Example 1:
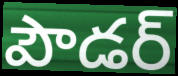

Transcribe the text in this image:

పౌడర్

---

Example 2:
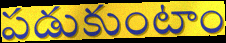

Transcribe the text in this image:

పడుకుంటాం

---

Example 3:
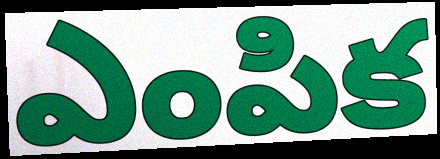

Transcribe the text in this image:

ఎంపిక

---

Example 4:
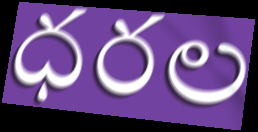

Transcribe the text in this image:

ధరల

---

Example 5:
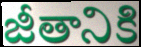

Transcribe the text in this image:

జీతానికి